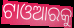
ଟାଓଆରକୁ